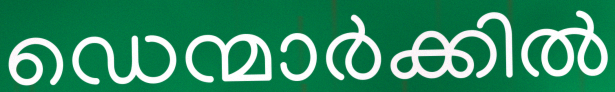
ഡെന്മാർക്കിൽ